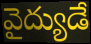
వైద్యుడే